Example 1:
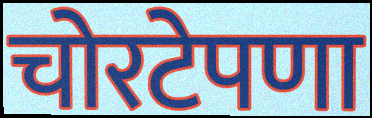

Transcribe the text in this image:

चोरटेपणा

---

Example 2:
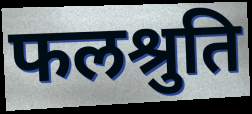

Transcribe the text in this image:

फलश्रुति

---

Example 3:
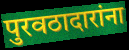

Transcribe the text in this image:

पुरवठादारांना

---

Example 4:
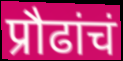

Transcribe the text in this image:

प्रौढांचं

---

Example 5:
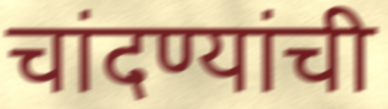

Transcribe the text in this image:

चांदण्यांची